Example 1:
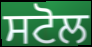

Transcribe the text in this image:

ਸਟੋਲ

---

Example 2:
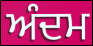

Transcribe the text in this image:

ਅੰਦਮ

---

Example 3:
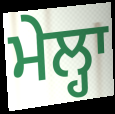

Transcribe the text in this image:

ਮੇਲ੍ਹਾ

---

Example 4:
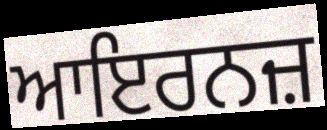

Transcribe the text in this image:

ਆਇਰਨਜ਼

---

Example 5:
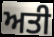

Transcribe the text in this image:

ਅਤੀ